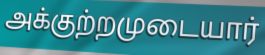
அக்குற்றமுடையார்